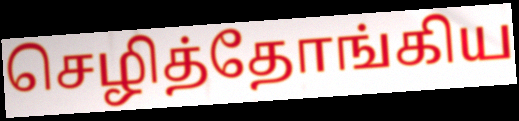
செழித்தோங்கிய